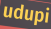
udupi